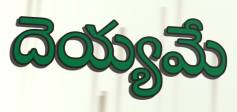
దెయ్యమే